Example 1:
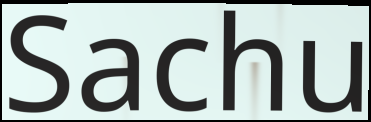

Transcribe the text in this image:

Sachu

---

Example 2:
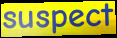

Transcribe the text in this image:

suspect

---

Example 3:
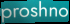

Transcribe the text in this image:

proshno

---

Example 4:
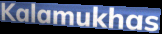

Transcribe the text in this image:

Kalamukhas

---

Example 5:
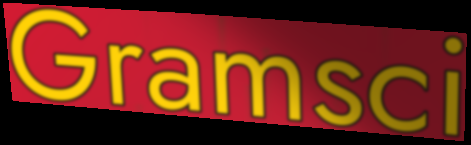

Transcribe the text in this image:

Gramsci